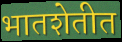
भातशेतीत